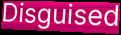
Disguised